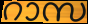
റാസ